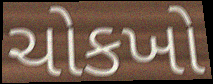
ચોકખો